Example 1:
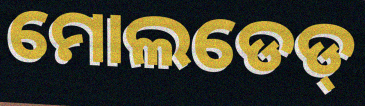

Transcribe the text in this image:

ମୋଲଡେଡ୍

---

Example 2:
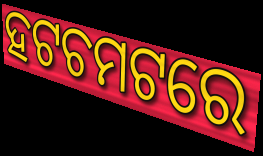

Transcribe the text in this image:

ହଟଚମଟରେ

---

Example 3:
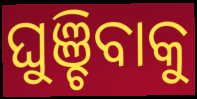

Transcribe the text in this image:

ଘୁଞ୍ଚିବାକୁ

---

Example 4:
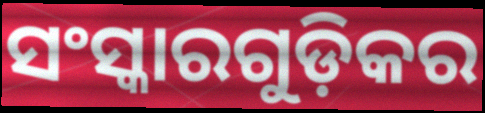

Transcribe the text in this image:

ସଂସ୍କାରଗୁଡ଼ିକର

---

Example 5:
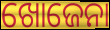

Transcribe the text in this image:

ଖୋଜେନା